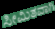
ಸೀಮಿತವಾಗಿ